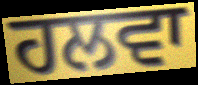
ਹਲਵਾ